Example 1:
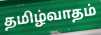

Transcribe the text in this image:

தமிழ்வாதம்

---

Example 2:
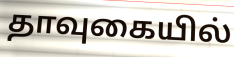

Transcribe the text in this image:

தாவுகையில்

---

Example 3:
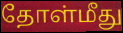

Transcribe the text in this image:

தோள்மீது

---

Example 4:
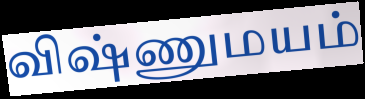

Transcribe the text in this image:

விஷ்ணுமயம்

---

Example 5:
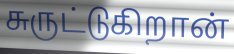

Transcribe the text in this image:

சுருட்டுகிறான்